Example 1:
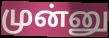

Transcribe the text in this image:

முன்னு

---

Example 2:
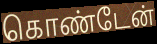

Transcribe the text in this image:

கொண்டேன்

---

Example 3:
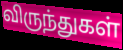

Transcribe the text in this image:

விருந்துகள்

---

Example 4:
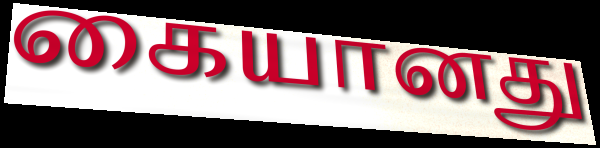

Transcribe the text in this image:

கையானது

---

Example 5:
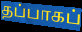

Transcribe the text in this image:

தப்பாகப்